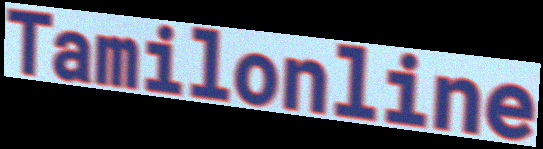
Tamilonline